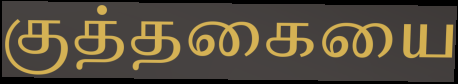
குத்தகையை